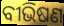
ବୀଭିଷଣ